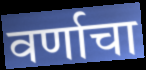
वर्णाचा